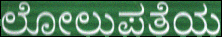
ಲೋಲುಪತೆಯ